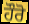
ਹੌਰੋ